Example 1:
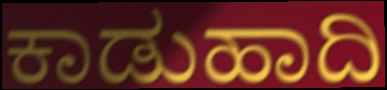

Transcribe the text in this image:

ಕಾಡುಹಾದಿ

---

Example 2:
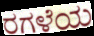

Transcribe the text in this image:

ರಗಳೆಯ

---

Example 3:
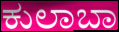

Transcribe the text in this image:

ಕುಲಾಬಾ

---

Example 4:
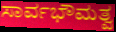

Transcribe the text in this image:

ಸಾರ್ವಭೌಮತ್ವ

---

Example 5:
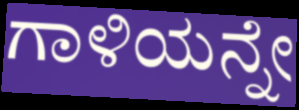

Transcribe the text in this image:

ಗಾಳಿಯನ್ನೇ